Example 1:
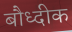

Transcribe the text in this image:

बौध्दीक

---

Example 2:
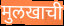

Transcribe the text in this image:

मुलखाची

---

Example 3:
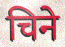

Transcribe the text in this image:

चिने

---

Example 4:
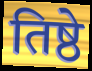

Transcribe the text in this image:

तिष्ठे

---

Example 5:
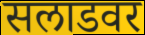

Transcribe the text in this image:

सलाडवर